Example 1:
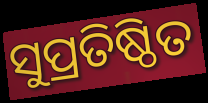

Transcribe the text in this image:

ସୁପ୍ରତିଷ୍ଠିତ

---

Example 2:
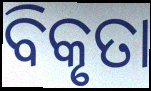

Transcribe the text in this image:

ବିକୃତା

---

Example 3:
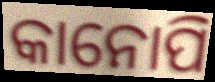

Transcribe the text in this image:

କାନୋପି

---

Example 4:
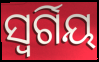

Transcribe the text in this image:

ସ୍ୱର୍ଗିୟ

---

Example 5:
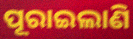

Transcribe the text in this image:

ପୂରାଇଲାଣି